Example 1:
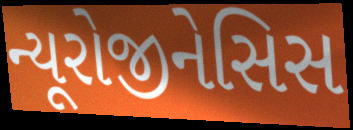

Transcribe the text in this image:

ન્યૂરોજીનેસિસ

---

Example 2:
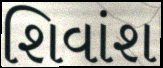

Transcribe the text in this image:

શિવાંશ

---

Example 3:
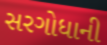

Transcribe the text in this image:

સરગોધાની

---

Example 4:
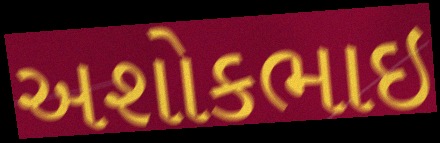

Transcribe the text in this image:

અશોકભાઇ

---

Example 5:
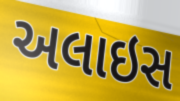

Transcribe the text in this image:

અલાઇસ